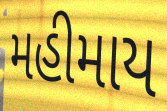
મહીમાય